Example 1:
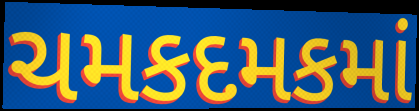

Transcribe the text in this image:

ચમકદમકમાં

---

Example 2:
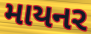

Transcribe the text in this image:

માયનર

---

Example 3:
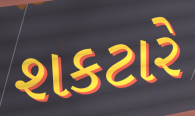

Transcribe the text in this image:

શકટારે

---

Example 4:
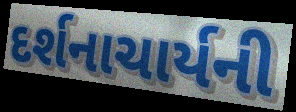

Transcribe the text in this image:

દર્શનાચાર્યની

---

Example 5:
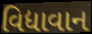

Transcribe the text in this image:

વિદ્યાવાન